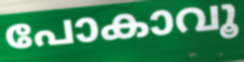
പോകാവൂ